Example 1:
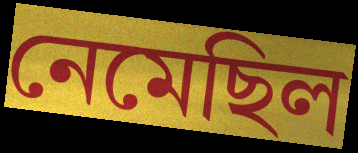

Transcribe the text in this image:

নেমেছিল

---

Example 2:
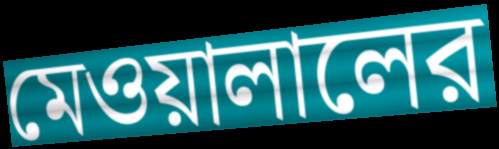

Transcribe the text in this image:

মেওয়ালালের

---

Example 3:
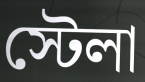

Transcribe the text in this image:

স্টেলা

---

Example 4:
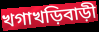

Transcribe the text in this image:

খগাখড়িবাড়ী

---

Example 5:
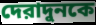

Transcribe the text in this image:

দেরাদুনকে